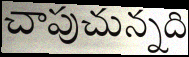
చాపుచున్నది